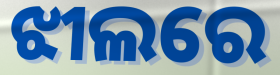
ଝୀଲରେ